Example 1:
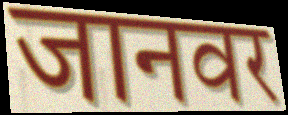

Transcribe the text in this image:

जानवर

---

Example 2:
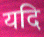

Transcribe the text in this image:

यदि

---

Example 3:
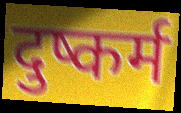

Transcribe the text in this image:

दुष्कर्म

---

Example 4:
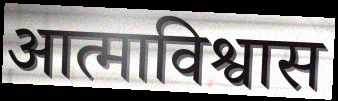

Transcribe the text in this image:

आत्माविश्वास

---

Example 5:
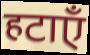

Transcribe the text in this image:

हटाएँ